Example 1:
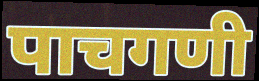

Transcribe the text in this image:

पाचगणी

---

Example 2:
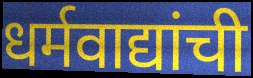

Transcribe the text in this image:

धर्मवाद्यांची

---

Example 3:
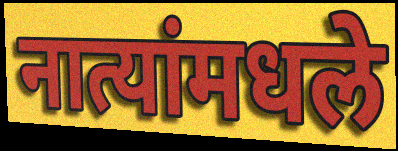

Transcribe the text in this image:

नात्यांमधले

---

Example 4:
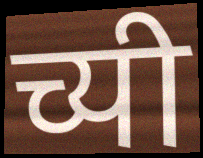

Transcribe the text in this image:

च्यी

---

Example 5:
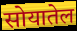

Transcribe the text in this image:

सोयातेल